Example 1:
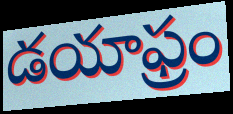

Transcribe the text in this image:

డయాఫ్రం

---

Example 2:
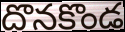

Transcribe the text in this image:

దొనకొండ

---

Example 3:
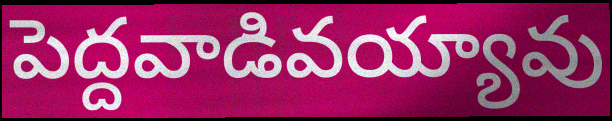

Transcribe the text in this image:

పెద్దవాడివయ్యావు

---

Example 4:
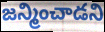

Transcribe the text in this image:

జన్మించాడని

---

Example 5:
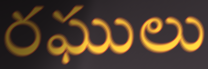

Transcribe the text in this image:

రఘులు